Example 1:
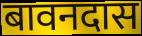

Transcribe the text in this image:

बावनदास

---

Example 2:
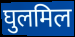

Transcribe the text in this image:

घुलमिल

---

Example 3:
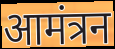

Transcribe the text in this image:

आमंत्रन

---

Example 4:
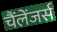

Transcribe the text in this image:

चैंलेंजर्स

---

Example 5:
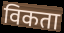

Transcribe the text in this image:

विकता